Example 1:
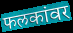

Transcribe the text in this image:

फलकांवर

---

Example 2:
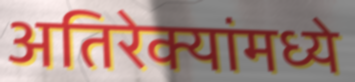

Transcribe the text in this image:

अतिरेक्यांमध्ये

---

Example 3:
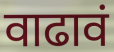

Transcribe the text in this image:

वाढावं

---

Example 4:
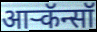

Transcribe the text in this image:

आर्‍कॅन्सॉ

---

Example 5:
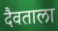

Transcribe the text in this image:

दैवताला